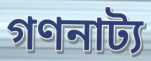
গণনাট্য